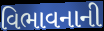
વિભાવનાની